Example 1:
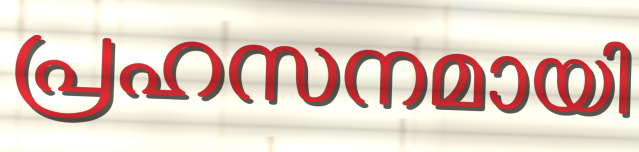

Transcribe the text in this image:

പ്രഹസനമായി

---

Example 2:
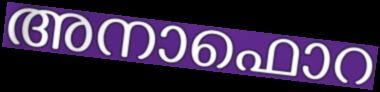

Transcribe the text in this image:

അനാഫൊറ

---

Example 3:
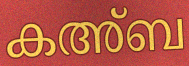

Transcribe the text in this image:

കഅ്ബ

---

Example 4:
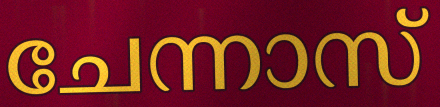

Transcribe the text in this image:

ചേന്നാസ്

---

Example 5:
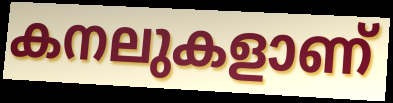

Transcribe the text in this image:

കനലുകളാണ്